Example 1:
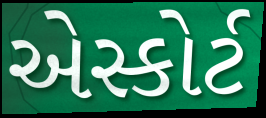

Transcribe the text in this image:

એસ્કોર્ટ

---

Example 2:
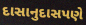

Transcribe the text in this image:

દાસાનુદાસપણે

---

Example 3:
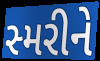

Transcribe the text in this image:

સ્મરીને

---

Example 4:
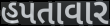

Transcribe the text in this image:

હપતાવાર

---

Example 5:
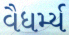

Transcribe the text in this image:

વૈધર્મ્ય